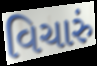
વિચારું